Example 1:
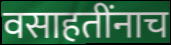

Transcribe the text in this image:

वसाहतींनाच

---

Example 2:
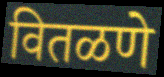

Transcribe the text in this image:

वितळणे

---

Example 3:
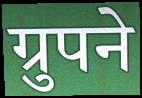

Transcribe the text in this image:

ग्रुपने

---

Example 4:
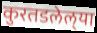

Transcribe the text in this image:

कुरतडलेल्या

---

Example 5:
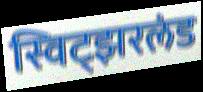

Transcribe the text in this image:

स्विट्झरलंड